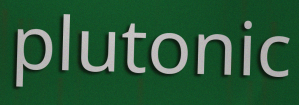
plutonic